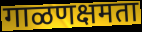
गाळणक्षमता